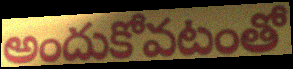
అందుకోవటంతో